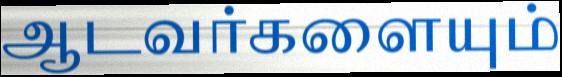
ஆடவர்களையும்